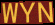
WYN